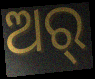
ଅର୍